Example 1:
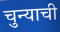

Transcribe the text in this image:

चुन्याची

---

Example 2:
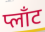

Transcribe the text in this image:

प्लाँट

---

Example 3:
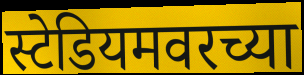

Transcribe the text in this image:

स्टेडियमवरच्या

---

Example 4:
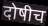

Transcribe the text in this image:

दोषीच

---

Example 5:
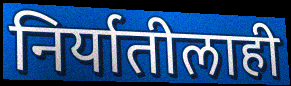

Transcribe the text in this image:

निर्यातीलाही